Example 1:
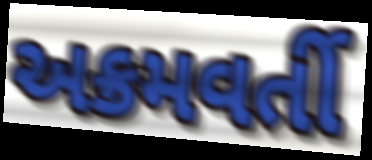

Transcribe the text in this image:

અક્રમવર્તી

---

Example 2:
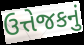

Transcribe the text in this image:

ઉત્તેજકનું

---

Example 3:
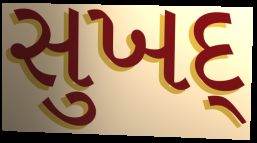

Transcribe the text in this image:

સુખદ્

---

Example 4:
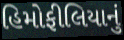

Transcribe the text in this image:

હિમોફીલિયાનું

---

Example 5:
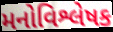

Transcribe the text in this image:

મનોવિશ્લેષક